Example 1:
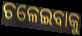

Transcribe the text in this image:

ଚଳେଇବାକୁ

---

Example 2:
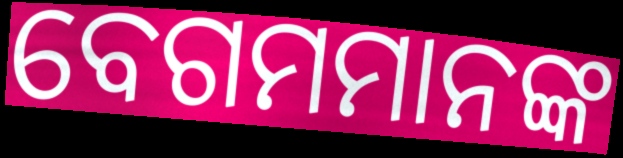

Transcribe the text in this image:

ବେଗମମାନଙ୍କ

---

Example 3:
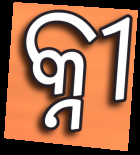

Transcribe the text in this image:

କ୍ନୀ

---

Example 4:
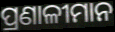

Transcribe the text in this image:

ପ୍ରଣାଳୀମାନ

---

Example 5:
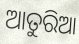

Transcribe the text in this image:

ଆତୁରିଆ